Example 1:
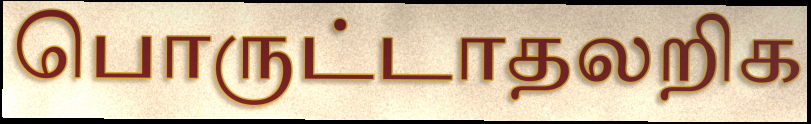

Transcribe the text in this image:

பொருட்டாதலறிக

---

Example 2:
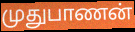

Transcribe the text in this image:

முதுபாணன்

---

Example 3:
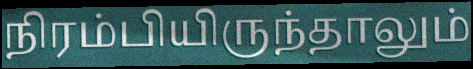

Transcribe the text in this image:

நிரம்பியிருந்தாலும்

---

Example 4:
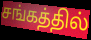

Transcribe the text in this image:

சங்கத்தில்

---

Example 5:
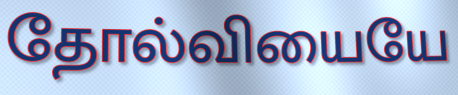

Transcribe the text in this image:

தோல்வியையே